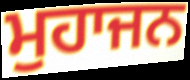
ਮੁਹਾਜਨ